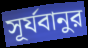
সূর্যবানুর